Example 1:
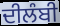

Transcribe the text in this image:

ਦੀਲੰਬੀ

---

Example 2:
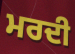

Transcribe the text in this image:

ਮਰਦੀ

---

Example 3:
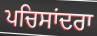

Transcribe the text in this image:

ਪਚਿਸਾਂਦਰਾ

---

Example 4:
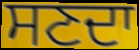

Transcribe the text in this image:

ਸਣਦਾ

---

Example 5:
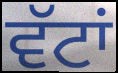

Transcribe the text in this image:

ਵੱਟਾਂ